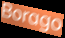
Borago